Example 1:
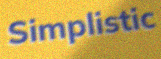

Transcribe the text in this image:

Simplistic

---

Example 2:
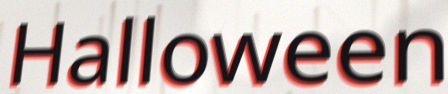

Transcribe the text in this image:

Halloween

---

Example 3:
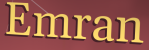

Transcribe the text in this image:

Emran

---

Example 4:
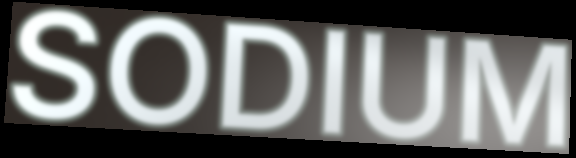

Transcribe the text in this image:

SODIUM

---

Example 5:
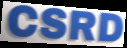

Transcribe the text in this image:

CSRD